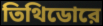
তিথিডোরে